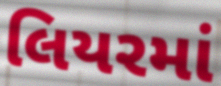
લિયરમાં